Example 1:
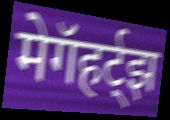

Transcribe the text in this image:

मेगॅहर्ट्झ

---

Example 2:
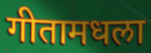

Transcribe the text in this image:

गीतामधला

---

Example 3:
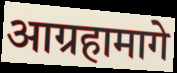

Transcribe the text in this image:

आग्रहामागे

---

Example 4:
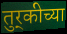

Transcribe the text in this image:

तुर्कीच्या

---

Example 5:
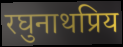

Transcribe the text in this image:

रघुनाथप्रिय